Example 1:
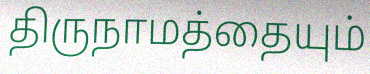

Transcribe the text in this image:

திருநாமத்தையும்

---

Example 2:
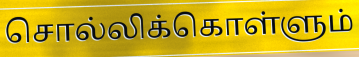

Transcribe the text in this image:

சொல்லிக்கொள்ளும்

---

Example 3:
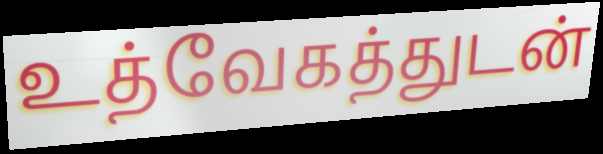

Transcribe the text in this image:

உத்வேகத்துடன்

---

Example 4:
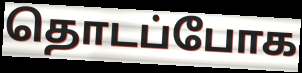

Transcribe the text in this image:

தொடப்போக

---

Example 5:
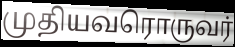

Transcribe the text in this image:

முதியவரொருவர்